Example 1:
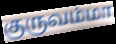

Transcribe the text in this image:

குருவம்மா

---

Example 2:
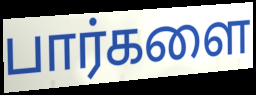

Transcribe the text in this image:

பார்களை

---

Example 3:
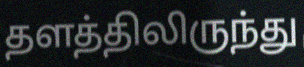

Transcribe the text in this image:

தளத்திலிருந்து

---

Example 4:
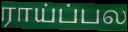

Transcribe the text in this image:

ராய்ப்பல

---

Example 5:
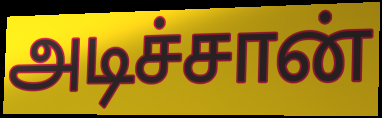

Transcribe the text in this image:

அடிச்சான்